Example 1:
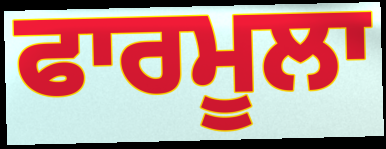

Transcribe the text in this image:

ਫਾਰਮੂਲਾ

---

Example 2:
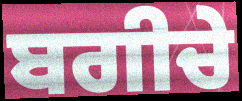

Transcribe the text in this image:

ਬਗੀਚੇ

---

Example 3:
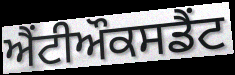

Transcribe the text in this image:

ਐਂਟੀਔਕਸਡੈਂਟ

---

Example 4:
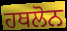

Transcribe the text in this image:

ਹਥਲੋਨ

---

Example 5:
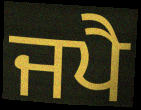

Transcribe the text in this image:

ਜਪੈ